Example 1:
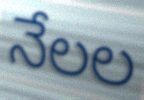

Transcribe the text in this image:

నేలల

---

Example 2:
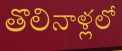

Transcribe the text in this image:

తొలినాళ్లలో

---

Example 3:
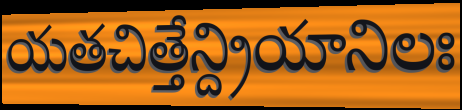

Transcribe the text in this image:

యతచిత్తేన్ద్రియానిలః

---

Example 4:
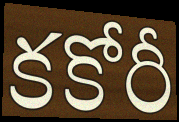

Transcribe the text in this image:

కకోరీ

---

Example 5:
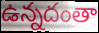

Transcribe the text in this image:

ఉన్నదంతా